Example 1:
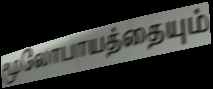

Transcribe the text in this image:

மூலோபாயத்தையும்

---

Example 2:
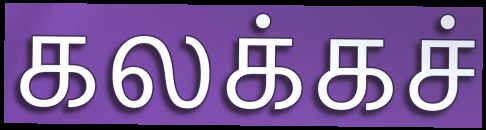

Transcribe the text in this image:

கலக்கச்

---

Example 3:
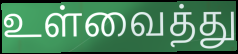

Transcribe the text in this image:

உள்வைத்து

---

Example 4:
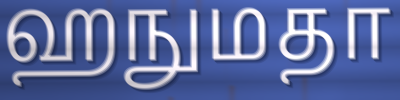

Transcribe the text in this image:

ஹநுமதா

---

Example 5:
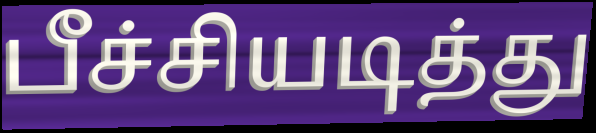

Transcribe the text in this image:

பீச்சியடித்து